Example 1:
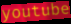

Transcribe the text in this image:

youtube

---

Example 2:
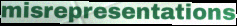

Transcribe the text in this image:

misrepresentations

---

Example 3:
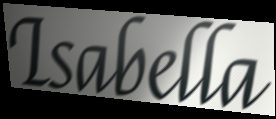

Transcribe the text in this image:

Isabella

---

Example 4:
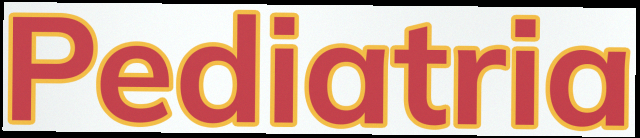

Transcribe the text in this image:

Pediatria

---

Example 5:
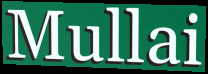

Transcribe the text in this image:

Mullai